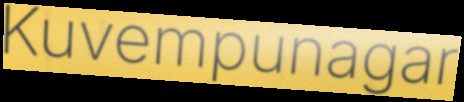
Kuvempunagar